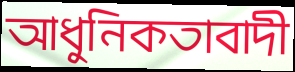
আধুনিকতাবাদী